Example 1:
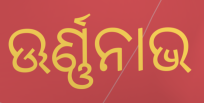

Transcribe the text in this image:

ଊର୍ଣ୍ଣନାଭ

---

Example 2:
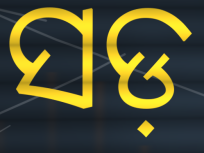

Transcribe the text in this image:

ସଡ଼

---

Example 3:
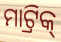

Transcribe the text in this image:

ମାଟ୍ରିକ୍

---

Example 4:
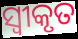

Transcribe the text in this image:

ସ୍ବୀକୃତ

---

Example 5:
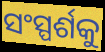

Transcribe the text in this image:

ସଂସ୍ପର୍ଶକୁ